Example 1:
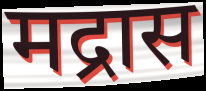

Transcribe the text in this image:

मद्रास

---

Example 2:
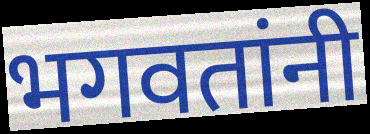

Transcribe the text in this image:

भगवतांनी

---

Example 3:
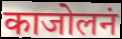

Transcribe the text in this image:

काजोलनं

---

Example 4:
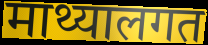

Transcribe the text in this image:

माथ्यालगत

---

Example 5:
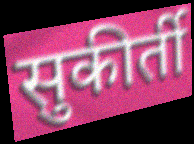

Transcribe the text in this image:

सुकीर्ती